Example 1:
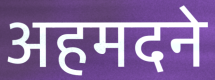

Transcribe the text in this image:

अहमदने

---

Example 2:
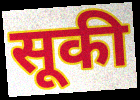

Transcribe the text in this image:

सूकी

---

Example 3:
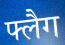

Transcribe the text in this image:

फ्लैग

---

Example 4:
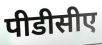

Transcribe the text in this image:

पीडीसीए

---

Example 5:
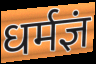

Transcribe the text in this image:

धर्मज्ञं